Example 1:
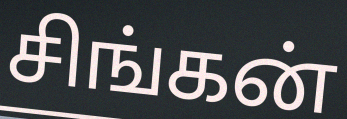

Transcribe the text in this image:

சிங்கன்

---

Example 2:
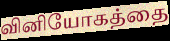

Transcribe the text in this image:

வினியோகத்தை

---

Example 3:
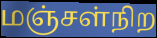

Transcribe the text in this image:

மஞ்சள்நிற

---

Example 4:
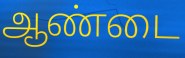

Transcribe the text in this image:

ஆண்டை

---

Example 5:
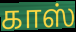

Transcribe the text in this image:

காஸ்